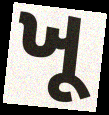
ખૂ